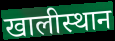
खालीस्थान